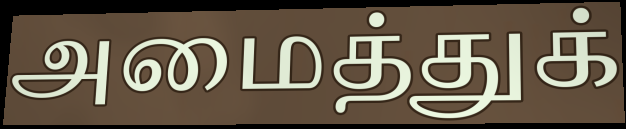
அமைத்துக்